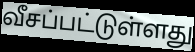
வீசப்பட்டுள்ளது